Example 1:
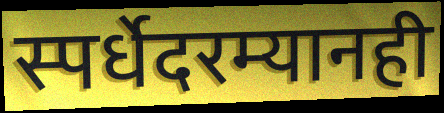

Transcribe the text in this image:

स्पर्धेदरम्यानही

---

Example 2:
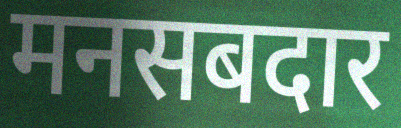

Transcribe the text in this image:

मनसबदार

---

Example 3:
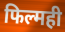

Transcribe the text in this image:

फिल्मही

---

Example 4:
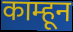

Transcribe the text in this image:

काम्हून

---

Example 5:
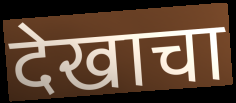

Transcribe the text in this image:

देखाचा